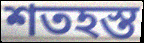
শতহস্ত